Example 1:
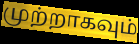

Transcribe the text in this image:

முற்றாகவும்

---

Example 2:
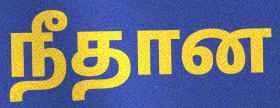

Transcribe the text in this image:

நீதான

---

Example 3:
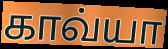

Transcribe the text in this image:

காவ்யா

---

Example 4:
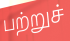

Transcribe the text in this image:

பற்றுச்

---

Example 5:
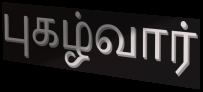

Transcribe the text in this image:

புகழ்வார்